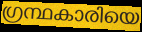
ഗ്രന്ഥകാരിയെ